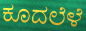
ಕೂದಲೆಳೆ